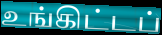
உங்கிட்டப்